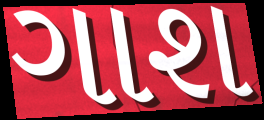
ગાશ